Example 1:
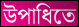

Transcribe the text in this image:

উপাধিতে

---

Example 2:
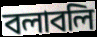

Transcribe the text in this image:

বলাবলি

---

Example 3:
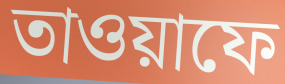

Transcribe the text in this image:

তাওয়াফে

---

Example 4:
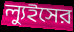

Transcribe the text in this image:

ল্যুইসের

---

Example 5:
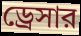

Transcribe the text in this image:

ড্রেসার